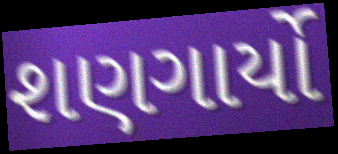
શણગાર્યો